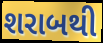
શરાબથી